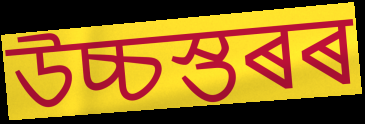
উচ্চস্তৰৰ